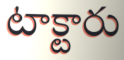
టాక్టారు